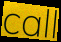
call